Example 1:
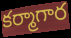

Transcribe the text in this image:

కర్మాగార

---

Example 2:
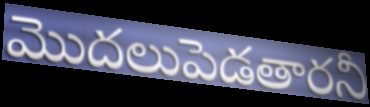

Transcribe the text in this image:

మొదలుపెడతారనీ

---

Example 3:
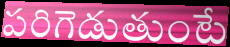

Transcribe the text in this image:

పరిగెడుతుంటే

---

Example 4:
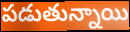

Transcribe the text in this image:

పడుతున్నాయి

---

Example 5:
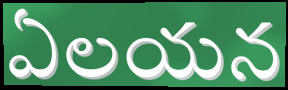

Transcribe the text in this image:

ఏలయన